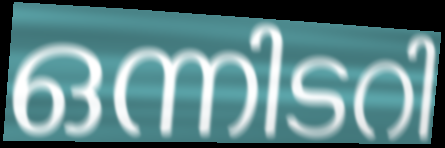
ഒന്നിടറി